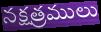
నక్షత్రములు